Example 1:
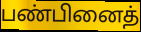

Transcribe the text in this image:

பண்பினைத்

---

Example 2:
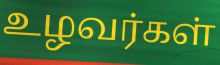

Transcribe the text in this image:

உழவர்கள்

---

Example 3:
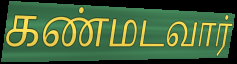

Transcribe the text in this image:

கண்மடவார்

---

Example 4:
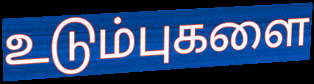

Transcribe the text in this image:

உடும்புகளை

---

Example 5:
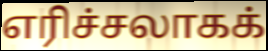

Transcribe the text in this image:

எரிச்சலாகக்